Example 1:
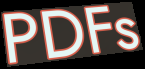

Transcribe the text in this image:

PDFs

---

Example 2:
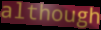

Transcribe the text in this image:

although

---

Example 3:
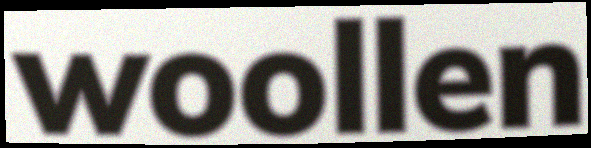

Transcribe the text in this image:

woollen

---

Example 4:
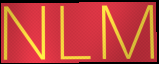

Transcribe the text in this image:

NLM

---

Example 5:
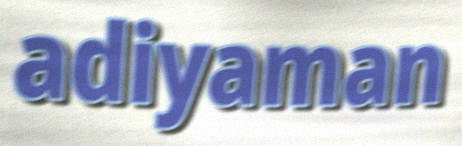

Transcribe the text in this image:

adiyaman